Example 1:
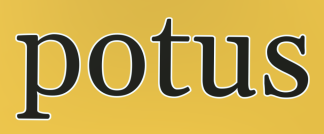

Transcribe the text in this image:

potus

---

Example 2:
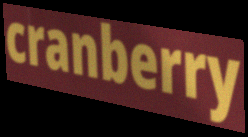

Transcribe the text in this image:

cranberry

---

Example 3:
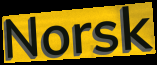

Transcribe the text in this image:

Norsk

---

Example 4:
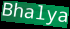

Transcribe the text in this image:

Bhalya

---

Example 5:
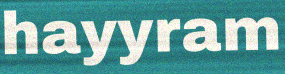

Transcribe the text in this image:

hayyram